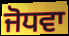
ਜੋਧਵਾ